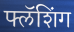
फ्लॅशिंग